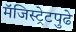
मॅजिस्ट्रेटपुढे